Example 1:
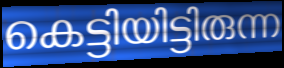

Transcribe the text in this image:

കെട്ടിയിട്ടിരുന്ന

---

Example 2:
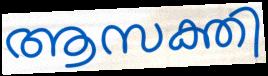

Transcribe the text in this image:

ആസക്തി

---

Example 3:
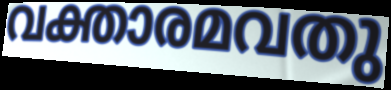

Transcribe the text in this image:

വക്താരമവതു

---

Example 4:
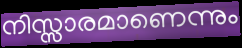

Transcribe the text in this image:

നിസ്സാരമാണെന്നും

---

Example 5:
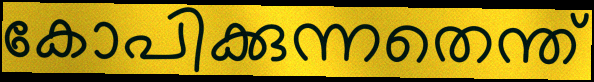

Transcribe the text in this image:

കോപിക്കുന്നതെന്ത്